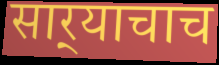
सार्याचाच